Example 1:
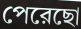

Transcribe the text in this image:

পেরেছো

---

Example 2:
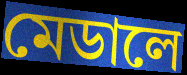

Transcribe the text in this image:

মেডালে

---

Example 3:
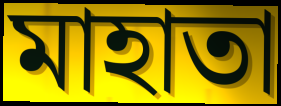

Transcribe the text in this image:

মাহাতা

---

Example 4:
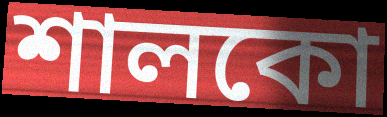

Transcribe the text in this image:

শালকো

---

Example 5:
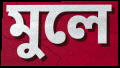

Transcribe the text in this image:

মুলে